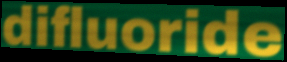
difluoride